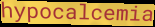
hypocalcemia